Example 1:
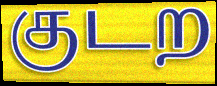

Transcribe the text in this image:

குடற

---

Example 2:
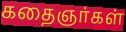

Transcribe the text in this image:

கதைஞர்கள்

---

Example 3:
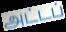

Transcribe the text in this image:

அட்டப்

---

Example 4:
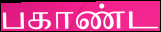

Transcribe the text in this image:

பகாண்ட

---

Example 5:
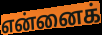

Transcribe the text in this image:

என்னைக்